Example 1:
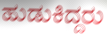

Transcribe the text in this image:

ಹುಡುಕಿದ್ದರು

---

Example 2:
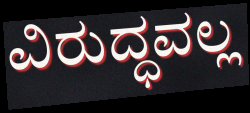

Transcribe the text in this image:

ವಿರುದ್ಧವಲ್ಲ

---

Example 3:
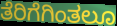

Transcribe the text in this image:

ತೆರಿಗೆಗಿಂತಲೂ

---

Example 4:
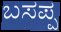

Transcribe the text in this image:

ಬಸಪ್ಪ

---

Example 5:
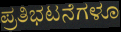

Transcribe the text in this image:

ಪ್ರತಿಭಟನೆಗಳೂ